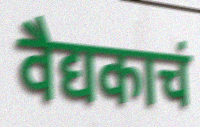
वैद्यकाचं